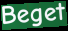
Beget